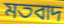
মতবাদ